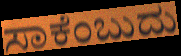
ಸಾಕೆಂಬುದು